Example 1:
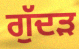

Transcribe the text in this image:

ਗੁੱਦੜ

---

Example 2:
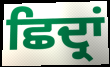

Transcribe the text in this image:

ਛਿਦ੍ਰਾਂ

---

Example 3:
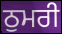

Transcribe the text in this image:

ਠੁਮਰੀ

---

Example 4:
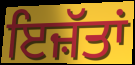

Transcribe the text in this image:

ਇਜ਼ੱਤਾਂ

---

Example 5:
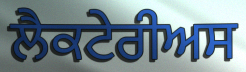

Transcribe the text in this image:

ਲੈਕਟੇਰੀਅਸ